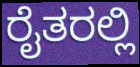
ರೈತರಲ್ಲಿ